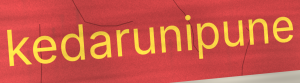
kedarunipune